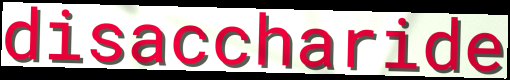
disaccharide